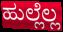
ಹುಲ್ಲೆಲ್ಲ